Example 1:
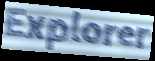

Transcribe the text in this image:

Explorer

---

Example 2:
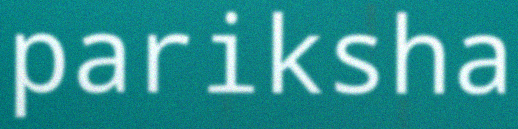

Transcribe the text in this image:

pariksha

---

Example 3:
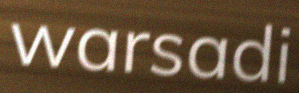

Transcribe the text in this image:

warsadi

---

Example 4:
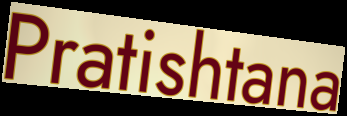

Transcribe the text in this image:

Pratishtana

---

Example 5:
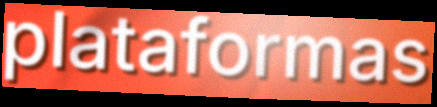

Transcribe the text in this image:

plataformas